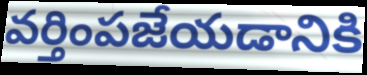
వర్తింపజేయడానికి